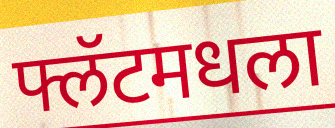
फ्लॅटमधला